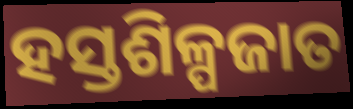
ହସ୍ତଶିଳ୍ପଜାତ